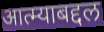
आत्म्याबद्दल